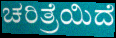
ಚರಿತ್ರೆಯಿದೆ